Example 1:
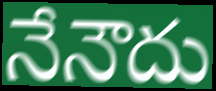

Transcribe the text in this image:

నేనౌదు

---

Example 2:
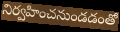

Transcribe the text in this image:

నిర్వహించనుండడంతో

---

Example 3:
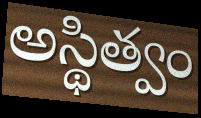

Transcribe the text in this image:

అస్థిత్వం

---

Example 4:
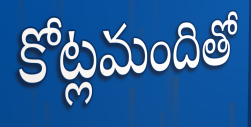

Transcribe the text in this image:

కోట్లమందితో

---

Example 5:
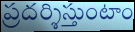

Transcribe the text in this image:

ప్రదర్శిస్తుంటాం